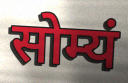
सोम्यं